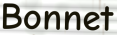
Bonnet